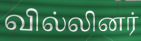
வில்லினர்